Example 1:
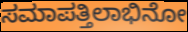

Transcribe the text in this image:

ಸಮಾಪತ್ತಿಲಾಭಿನೋ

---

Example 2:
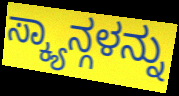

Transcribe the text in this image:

ಸ್ಕ್ಯಾನ್ಗಳನ್ನು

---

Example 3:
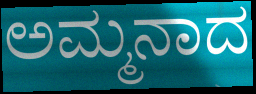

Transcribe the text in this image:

ಅಮ್ಮನಾದ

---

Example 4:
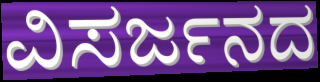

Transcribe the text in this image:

ವಿಸರ್ಜನದ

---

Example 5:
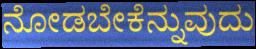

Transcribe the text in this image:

ನೋಡಬೇಕೆನ್ನುವುದು